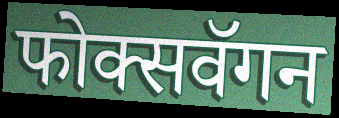
फोक्सवॅगन